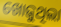
ଖୋଜୁଥିଲା